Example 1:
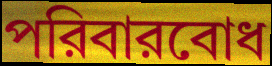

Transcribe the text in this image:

পরিবারবোধ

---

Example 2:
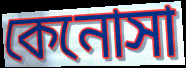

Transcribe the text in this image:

কেনোসা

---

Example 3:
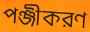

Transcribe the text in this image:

পঞ্জীকরণ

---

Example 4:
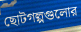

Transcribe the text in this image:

ছোটগল্পগুলোর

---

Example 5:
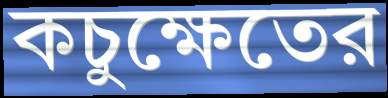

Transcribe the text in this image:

কচুক্ষেতের